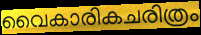
വൈകാരികചരിത്രം